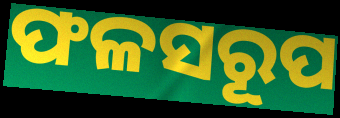
ଫଳସରୂପ